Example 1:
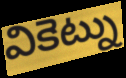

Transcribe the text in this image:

వికెట్ను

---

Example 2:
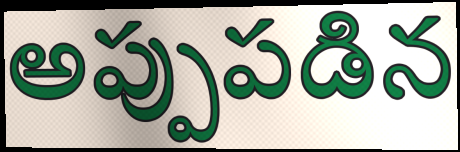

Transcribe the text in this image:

అప్పుపడిన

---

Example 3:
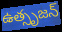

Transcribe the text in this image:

ఉత్సృజన్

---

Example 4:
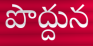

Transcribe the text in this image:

పొద్దున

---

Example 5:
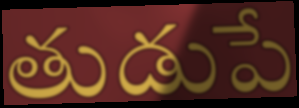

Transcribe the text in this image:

తుడుపే